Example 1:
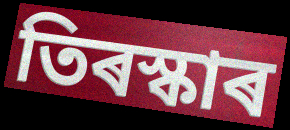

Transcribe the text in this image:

তিৰস্কাৰ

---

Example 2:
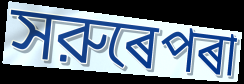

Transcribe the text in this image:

সৰুৰেপৰা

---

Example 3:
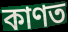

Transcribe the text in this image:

কাণত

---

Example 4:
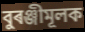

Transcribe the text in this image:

বুৰঞ্জীমূলক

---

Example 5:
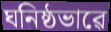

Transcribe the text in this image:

ঘনিষ্ঠভাৱে